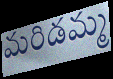
మరిడమ్మ